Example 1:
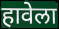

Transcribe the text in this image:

हावेला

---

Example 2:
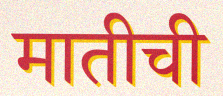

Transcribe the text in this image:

मातीची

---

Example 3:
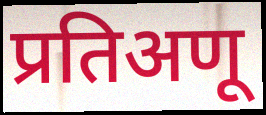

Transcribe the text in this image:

प्रतिअणू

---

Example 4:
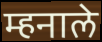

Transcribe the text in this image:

म्हनाले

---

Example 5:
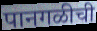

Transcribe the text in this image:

पानगळीची